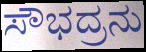
ಸೌಭದ್ರನು